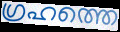
ഗ്രഹത്തെ